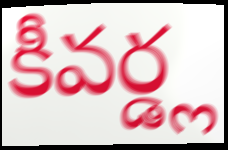
కీవర్డ్ల